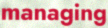
managing